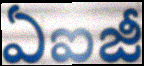
ఏఐజీ